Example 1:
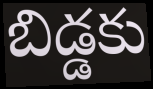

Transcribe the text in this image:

బిడ్డకు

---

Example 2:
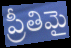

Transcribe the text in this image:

ప్రీతిమై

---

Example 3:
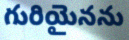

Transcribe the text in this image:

గురియైనను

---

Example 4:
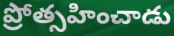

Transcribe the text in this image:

ప్రోత్సహించాడు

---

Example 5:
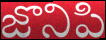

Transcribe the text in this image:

జొనిపి